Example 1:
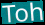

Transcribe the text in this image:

Toh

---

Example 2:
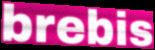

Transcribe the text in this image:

brebis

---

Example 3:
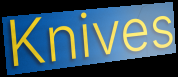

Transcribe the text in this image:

Knives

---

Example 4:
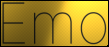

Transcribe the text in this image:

Emo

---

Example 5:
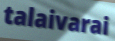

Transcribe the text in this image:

talaivarai